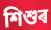
শিশুৰ